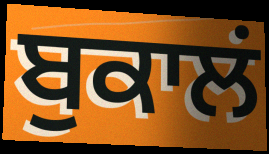
ਬੁਕਾਲਂ